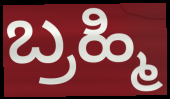
ಬ್ರಹ್ಮಿ